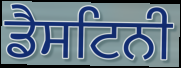
ਡੈਸਟਿਨੀ